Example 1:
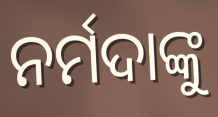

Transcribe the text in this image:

ନର୍ମଦାଙ୍କୁ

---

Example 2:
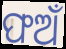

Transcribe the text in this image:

ଫଅଁ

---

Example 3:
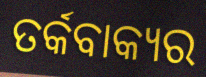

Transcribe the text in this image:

ତର୍କବାକ୍ୟର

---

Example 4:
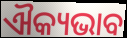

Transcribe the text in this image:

ଐକ୍ୟଭାବ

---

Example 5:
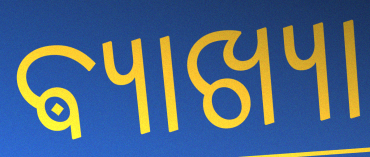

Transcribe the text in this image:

ଵ୍ଯାଖ୍ଯା